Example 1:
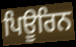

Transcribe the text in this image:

ਪਿਊਰਿਨ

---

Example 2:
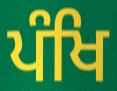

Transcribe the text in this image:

ਪੰਖਿ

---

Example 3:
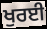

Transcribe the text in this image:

ਖੁਰਈ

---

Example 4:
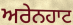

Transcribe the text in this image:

ਅਰੇਨਹਾਟ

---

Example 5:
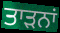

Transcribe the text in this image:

ਤਾੜਨਾਂ